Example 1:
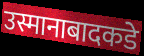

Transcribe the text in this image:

उस्मानाबादकडे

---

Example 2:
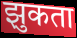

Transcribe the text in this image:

झुकता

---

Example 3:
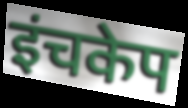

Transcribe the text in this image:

इंचकेप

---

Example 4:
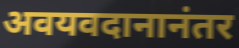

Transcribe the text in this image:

अवयवदानानंतर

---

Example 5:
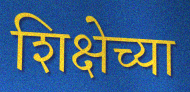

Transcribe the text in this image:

शिक्षेच्या